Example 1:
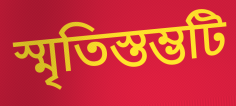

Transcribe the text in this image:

স্মৃতিস্তম্ভটি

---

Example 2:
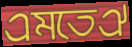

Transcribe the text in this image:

এমতেঐ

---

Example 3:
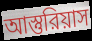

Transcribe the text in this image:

আস্তুরিয়াস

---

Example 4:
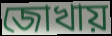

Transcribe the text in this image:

জোখায়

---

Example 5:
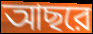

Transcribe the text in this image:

আছরে